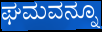
ಘಮವನ್ನೂ